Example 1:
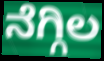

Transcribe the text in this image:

ನೆಗ್ಗಿಲ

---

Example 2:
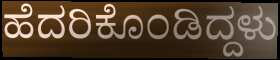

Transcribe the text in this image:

ಹೆದರಿಕೊಂಡಿದ್ದಳು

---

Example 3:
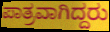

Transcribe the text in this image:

ಪಾತ್ರವಾಗಿದ್ದರು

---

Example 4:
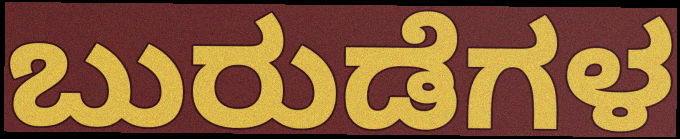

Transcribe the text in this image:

ಬುರುಡೆಗಳ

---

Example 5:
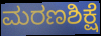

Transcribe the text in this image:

ಮರಣಶಿಕ್ಷೆ